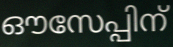
ഔസേപ്പിന്